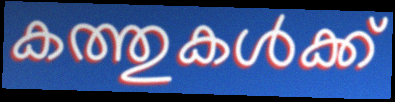
കത്തുകൾക്ക്